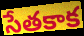
సేతకాక